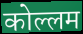
कोल्लम